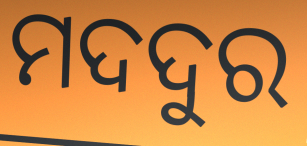
ମଦଦୁର